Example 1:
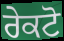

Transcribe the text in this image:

ਰੇਕਟੋ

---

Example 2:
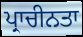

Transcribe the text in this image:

ਪ੍ਰਾਚੀਨਤਾ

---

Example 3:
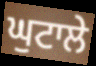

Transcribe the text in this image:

ਘੁਟਾਲੇ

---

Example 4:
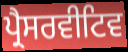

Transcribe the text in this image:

ਪ੍ਰੈਸਰਵੀਟਿਵ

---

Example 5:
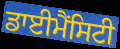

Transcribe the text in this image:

ਡਾਈਮੈਂਸਿਟੀ